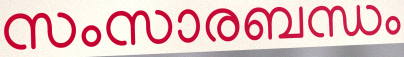
സംസാരബന്ധം